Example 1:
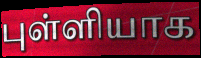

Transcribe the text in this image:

புள்ளியாக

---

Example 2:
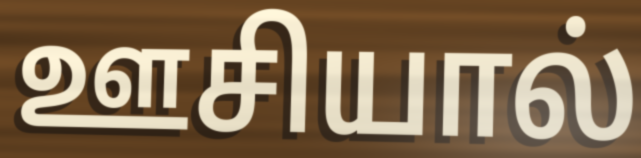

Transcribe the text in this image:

ஊசியால்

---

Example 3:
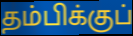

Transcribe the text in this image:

தம்பிக்குப்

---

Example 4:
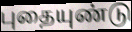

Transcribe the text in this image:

புதையுண்டு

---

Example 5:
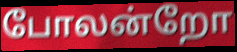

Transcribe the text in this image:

போலன்றோ